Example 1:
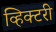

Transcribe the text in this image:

व्हिक्टरी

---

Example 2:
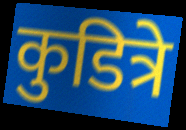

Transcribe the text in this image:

कुडित्रे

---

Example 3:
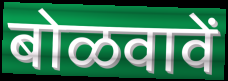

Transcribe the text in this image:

बोळवावें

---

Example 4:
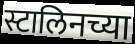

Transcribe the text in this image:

स्टालिनच्या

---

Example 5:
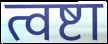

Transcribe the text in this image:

त्वष्टा